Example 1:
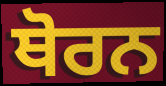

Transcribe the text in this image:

ਥੋਰਨ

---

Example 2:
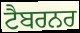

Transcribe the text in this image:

ਟੈਬਰਨਰ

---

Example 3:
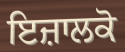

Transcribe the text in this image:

ਇਜ਼ਾਲਕੋ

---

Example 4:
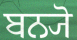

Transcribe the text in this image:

ਬਨ੍ਯੋ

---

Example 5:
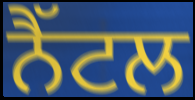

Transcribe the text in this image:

ਨੈੱਟਲ